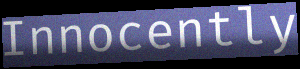
Innocently